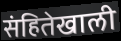
संहितेखाली